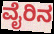
ವೈರಿನ